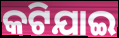
କଟିଯାଇ